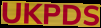
UKPDS